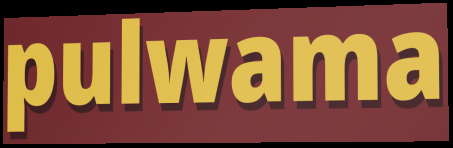
pulwama